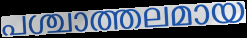
പശ്ചാത്തലമായ